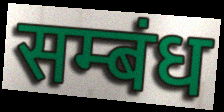
सम्बंध